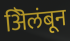
ऄिलंबून